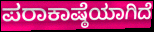
ಪರಾಕಾಷ್ಠೆಯಾಗಿದೆ